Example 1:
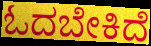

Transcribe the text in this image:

ಓದಬೇಕಿದೆ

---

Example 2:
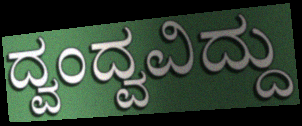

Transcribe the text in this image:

ದ್ವಂದ್ವವಿದ್ದು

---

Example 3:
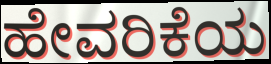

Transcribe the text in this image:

ಹೇವರಿಕೆಯ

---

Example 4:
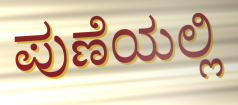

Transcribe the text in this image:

ಪುಣೆಯಲ್ಲಿ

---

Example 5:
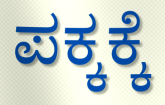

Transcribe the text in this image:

ಪಕ್ಕಕ್ಕೆ